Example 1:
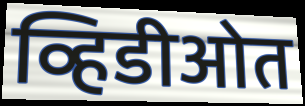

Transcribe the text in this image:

व्हिडीओत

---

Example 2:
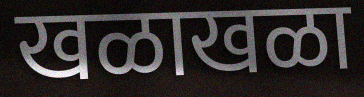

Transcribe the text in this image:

खळाखळा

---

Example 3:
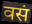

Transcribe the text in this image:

वसं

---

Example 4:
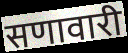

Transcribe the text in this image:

सणावारी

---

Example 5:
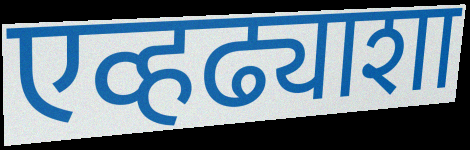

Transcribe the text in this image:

एव्हढ्याशा